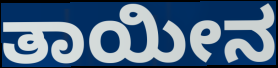
ತಾಯೀನ